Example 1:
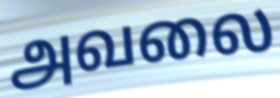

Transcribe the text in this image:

அவலை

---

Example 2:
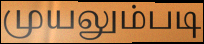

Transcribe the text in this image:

முயலும்படி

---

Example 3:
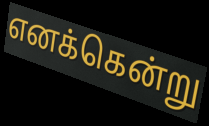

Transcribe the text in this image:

எனக்கென்று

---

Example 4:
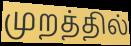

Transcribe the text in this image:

முறத்தில்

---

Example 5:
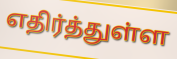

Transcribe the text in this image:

எதிர்த்துள்ள